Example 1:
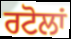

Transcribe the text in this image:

ਰਟੋਲਾਂ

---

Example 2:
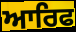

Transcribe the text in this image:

ਆਰਿਫ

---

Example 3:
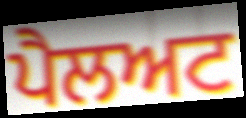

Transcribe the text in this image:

ਪੈਲਅਟ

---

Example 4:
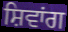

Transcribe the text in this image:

ਸ਼ਿਵਾਂਗ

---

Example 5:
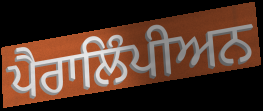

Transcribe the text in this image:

ਪੈਰਾਲਿੰਪੀਅਨ